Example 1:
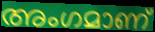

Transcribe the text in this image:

അംഗമാണ്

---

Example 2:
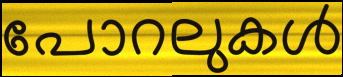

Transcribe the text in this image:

പോറലുകൾ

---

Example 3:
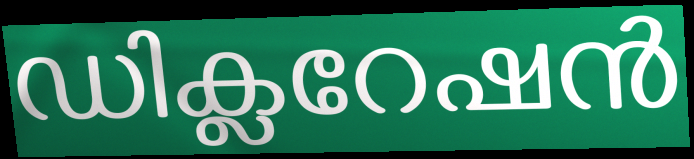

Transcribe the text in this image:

ഡിക്ലറേഷൻ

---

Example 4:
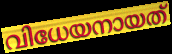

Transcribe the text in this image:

വിധേയനായത്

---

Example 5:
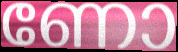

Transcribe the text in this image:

ണോ